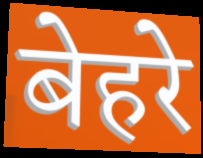
बेहरे